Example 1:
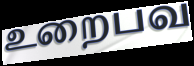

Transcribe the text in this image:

உறைபவ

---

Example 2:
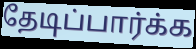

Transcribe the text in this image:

தேடிப்பார்க்க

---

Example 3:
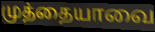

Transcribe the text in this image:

முத்தையாவை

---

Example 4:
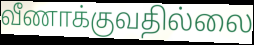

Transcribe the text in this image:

வீணாக்குவதில்லை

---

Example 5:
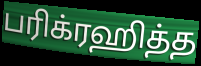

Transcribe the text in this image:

பரிக்ரஹித்த